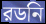
রডনি